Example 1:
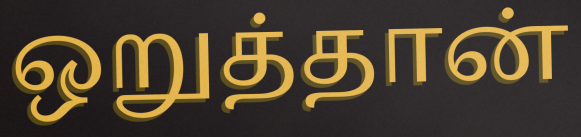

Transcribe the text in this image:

ஒறுத்தான்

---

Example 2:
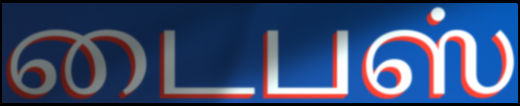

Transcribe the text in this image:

டைபஸ்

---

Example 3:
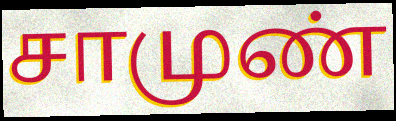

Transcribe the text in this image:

சாமுண்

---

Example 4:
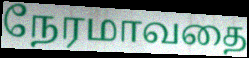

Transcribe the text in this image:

நேரமாவதை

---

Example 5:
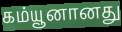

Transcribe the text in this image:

கம்யூனானது